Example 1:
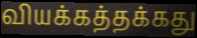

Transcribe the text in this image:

வியக்கத்தக்கது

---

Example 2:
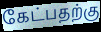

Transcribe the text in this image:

கேட்பதற்கு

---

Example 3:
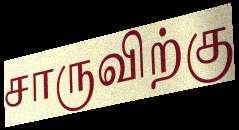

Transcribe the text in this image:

சாருவிற்கு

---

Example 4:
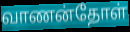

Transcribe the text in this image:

வாணன்தோள்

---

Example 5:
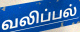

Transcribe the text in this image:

வலிப்பல்